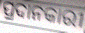
ପ୍ରଦାନକାରୀ